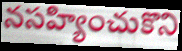
నసహ్యించుకొని